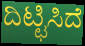
ದಿಟ್ಟಿಸಿದೆ